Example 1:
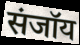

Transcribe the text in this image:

संजॉय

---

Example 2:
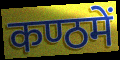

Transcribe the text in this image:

कण्ठमें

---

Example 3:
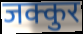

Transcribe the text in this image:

जक्कुर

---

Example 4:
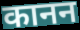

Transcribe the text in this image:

कानन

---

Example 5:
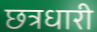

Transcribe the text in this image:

छत्रधारी